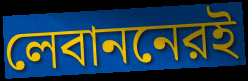
লেবাননেরই